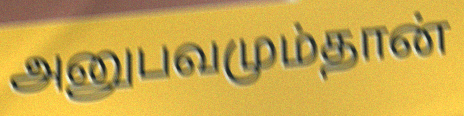
அனுபவமும்தான்